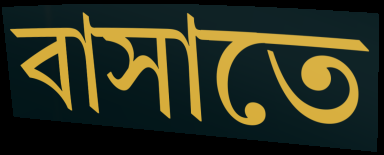
বাসাতে